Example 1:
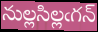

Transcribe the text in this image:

నుల్లసిల్లఁగన్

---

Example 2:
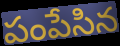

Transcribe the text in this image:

పంపేసిన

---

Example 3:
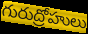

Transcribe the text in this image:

గురుద్రోహులు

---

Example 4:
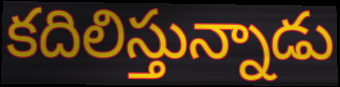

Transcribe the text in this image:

కదిలిస్తున్నాడు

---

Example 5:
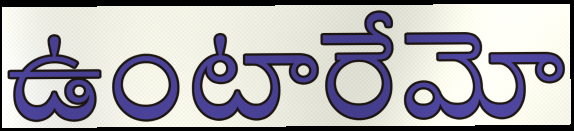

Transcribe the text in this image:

ఉంటారేమో